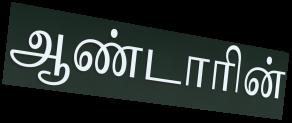
ஆண்டாரின்